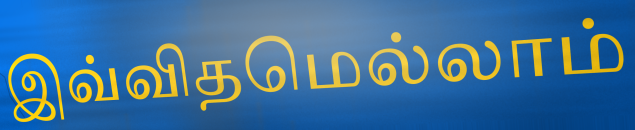
இவ்விதமெல்லாம்